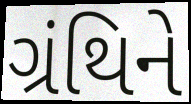
ગ્રંથિને